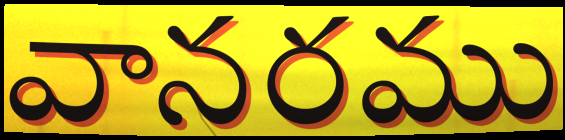
వానరము